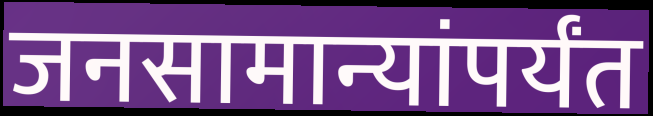
जनसामान्यांपर्यंत